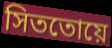
সিততোয়ে